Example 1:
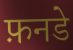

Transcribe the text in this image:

फ़नडे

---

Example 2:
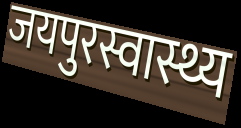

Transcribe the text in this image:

जयपुरस्वास्थ्य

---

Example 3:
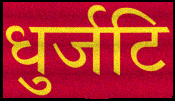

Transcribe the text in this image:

धुर्जटि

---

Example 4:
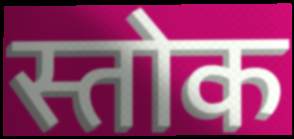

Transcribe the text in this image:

स्तोक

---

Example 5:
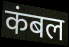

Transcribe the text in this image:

कंबल